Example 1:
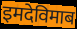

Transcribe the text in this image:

इमदेविमाब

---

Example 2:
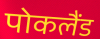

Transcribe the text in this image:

पोकलैंड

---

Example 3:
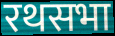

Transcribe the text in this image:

रथसभा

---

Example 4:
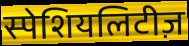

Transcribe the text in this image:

स्पेशियलिटीज़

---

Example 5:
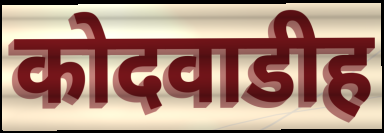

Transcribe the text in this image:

कोदवाडीह